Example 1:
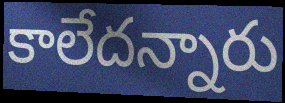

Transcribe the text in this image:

కాలేదన్నారు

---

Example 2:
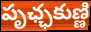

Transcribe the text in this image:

పృఛ్ఛకుణ్ణి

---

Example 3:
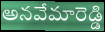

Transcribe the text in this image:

అనవేమారెడ్డి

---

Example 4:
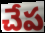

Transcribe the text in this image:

చేప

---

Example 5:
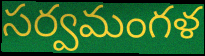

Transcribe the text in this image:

సర్వమంగళ